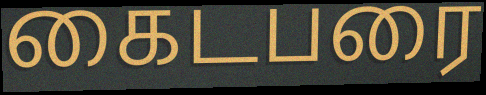
கைடபரை